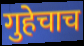
गुहेचाच